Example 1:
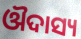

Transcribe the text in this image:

ଔଦାସ୍ୟ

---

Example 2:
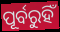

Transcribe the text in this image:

ପୂର୍ବରୁହିଁ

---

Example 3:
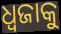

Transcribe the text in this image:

ଧ୍ୱଜାକୁ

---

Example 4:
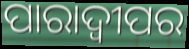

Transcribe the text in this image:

ପାରାଦ୍ବୀପର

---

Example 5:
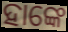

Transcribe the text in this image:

ହାଙ୍କେ